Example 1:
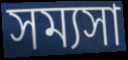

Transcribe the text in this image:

সম্যসা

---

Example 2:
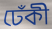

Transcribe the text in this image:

ঢেঁকী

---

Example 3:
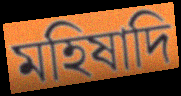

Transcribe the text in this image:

মহিষাদি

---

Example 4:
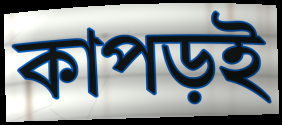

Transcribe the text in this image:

কাপড়ই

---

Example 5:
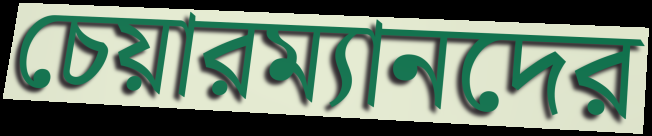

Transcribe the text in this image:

চেয়ারম্যানদের